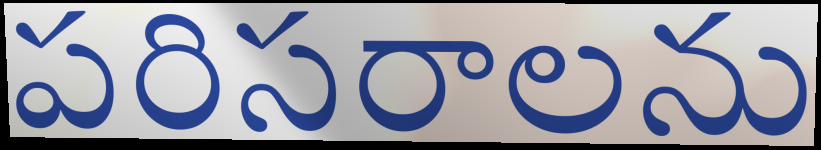
పరిసరాలను